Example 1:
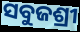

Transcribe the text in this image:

ସବୁଜଶ୍ରୀ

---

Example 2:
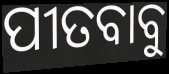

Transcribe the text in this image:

ପୀତବାବୁ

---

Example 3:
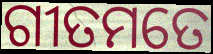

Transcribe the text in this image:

ଗୀତମତେ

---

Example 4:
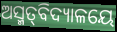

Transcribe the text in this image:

ଅସ୍ମତ୍‌ବିଦ୍ୟାଳୟେ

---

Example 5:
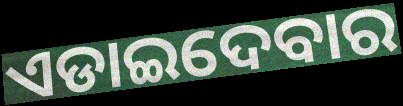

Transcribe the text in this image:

ଏଡାଇଦେବାର